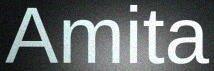
Amita